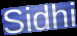
Sidhi